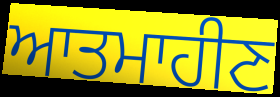
ਆਤਮਾਹੀਣ